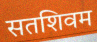
सतशिवम